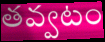
తవ్వటం